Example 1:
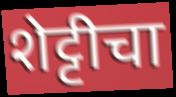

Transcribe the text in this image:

शेट्टीचा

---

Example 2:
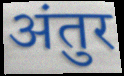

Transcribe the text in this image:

अंतुर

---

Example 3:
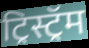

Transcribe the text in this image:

ट्रिस्ट्रॅम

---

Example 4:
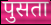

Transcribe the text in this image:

पुसता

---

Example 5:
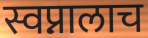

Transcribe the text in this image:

स्वप्नालाच